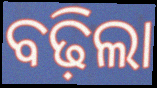
ବଢ଼ିଲା